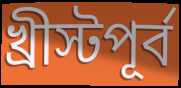
খ্রীস্টপূর্ব